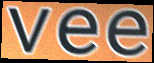
vee